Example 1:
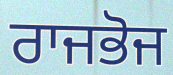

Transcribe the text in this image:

ਰਾਜਭੋਜ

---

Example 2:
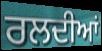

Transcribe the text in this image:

ਰਲਦੀਆਂ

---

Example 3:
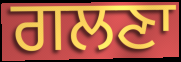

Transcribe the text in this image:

ਗਲਣਾ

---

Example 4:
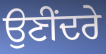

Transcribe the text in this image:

ਉਣੀਂਦਰੇ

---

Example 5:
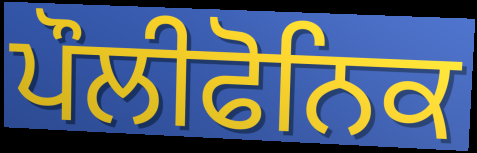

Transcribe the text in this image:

ਪੌਲੀਫੋਨਿਕ